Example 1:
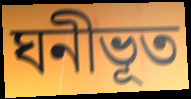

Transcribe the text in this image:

ঘনীভূত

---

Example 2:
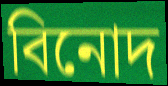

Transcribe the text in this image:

বিনোদ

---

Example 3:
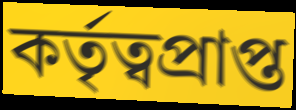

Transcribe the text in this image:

কৰ্তৃত্বপ্ৰাপ্ত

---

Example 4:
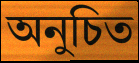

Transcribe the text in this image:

অনুচিত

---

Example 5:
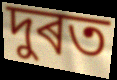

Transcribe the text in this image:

দুৰত